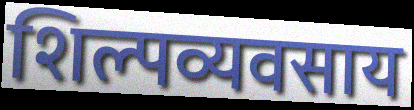
शिल्पव्यवसाय